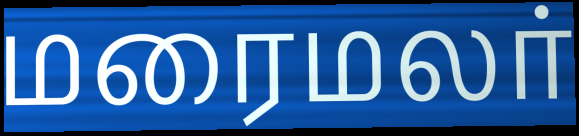
மரைமலர்